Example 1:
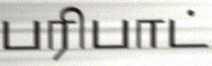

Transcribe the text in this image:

பரிபாட்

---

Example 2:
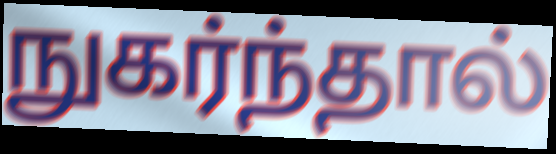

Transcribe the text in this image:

நுகர்ந்தால்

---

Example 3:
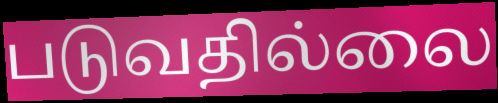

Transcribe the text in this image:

படுவதில்லை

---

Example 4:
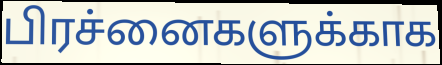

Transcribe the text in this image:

பிரச்னைகளுக்காக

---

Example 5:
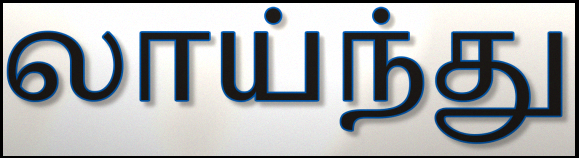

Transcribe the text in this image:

லாய்ந்து